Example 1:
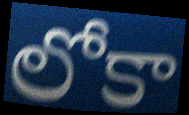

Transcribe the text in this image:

లోకా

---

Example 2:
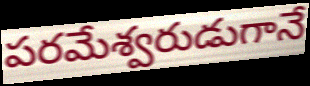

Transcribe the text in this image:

పరమేశ్వరుడుగానే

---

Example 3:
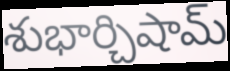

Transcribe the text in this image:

శుభార్చిషామ్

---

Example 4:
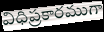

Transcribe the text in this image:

విధిప్రకారముగా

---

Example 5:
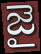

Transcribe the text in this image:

జై